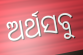
ଅର୍ଥସବୁ